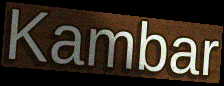
Kambar